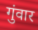
गुंवार